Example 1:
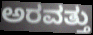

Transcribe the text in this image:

ಅರವತ್ತು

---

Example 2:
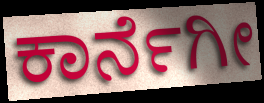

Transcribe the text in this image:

ಕಾರ್ನೆಗೀ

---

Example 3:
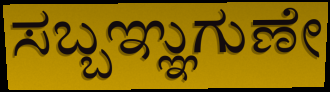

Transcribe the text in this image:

ಸಬ್ಬಞ್ಞುಗುಣೇ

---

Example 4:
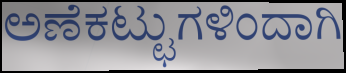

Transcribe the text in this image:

ಅಣೆಕಟ್ಟುಗಳಿಂದಾಗಿ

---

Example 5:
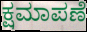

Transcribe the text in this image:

ಕ್ಷಮಾಪಣೆ